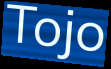
Tojo